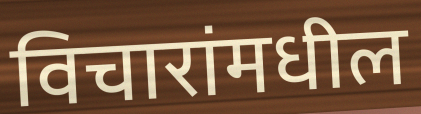
विचारांमधील